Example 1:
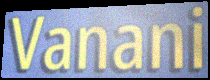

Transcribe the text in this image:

Vanani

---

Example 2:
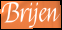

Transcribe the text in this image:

Brijen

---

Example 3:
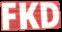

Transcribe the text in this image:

FKD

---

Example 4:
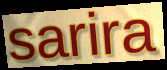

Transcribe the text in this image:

sarira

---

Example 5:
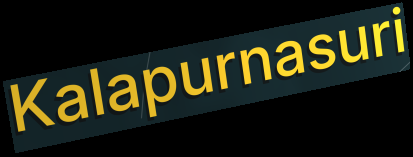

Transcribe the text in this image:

Kalapurnasuri